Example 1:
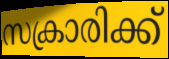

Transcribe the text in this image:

സക്രാരിക്ക്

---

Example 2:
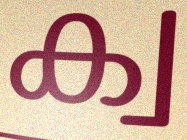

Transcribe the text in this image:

ക്വ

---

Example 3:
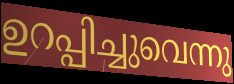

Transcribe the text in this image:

ഉറപ്പിച്ചുവെന്നു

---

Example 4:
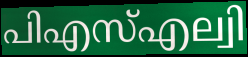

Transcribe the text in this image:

പിഎസ്എല്വി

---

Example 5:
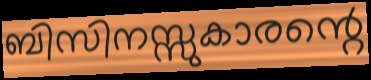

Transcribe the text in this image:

ബിസിനസ്സുകാരന്റെ